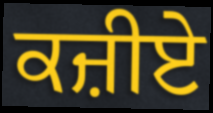
ਕਜ਼ੀਏ